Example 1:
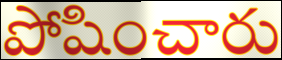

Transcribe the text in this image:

పోషించారు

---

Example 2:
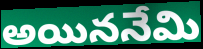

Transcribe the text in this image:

అయిననేమి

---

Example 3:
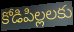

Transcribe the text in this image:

కోడిపిల్లలకు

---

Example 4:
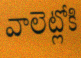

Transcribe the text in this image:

వాలెట్లోకి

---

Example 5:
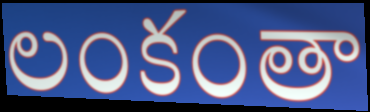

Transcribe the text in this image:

లంకంతా